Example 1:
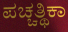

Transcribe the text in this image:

ಪಚ್ಚತ್ಥಿಕಾ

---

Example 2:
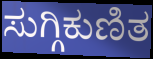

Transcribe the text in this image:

ಸುಗ್ಗಿಕುಣಿತ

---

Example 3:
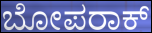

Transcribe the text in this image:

ಬೋಪರಾಕ್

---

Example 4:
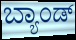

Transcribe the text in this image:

ಬ್ಯಾಂಡ್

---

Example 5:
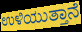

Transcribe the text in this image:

ಉಳಿಯುತ್ತಾನೆ